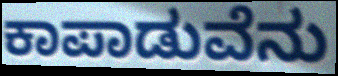
ಕಾಪಾಡುವೆನು